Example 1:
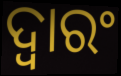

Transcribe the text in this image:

ଦ୍ୱାରଂ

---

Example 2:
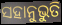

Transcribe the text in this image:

ସହାନୁଭୁତି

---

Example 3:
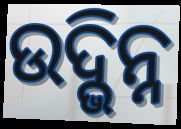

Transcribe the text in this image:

ଉଦ୍ଭିନ୍ନ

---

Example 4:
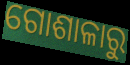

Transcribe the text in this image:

ଗୋଶାଳାରୁ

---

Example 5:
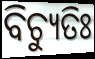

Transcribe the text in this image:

ବିଚ୍ୟୁତିଃ